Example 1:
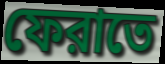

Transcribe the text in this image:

ফেরাতে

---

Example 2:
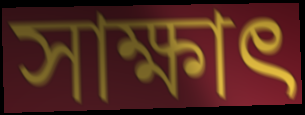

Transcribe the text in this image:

সাক্ষাৎ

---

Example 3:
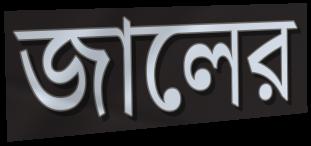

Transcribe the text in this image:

জালের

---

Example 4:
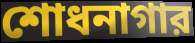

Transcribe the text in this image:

শোধনাগার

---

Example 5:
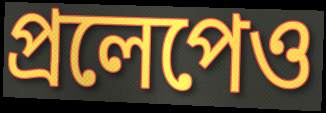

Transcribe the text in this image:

প্রলেপেও